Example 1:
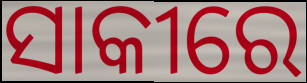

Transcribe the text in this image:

ସାକୀରେ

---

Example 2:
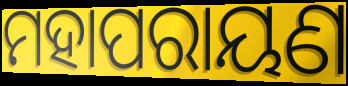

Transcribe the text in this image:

ମହାପରାୟଣ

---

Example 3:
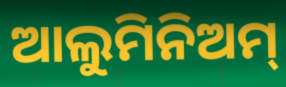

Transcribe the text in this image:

ଆଲୁମିନିଅମ୍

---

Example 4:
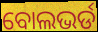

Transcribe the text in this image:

ବୋଲଭର୍ଡ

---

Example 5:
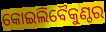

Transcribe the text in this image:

କୋଇଲିବୈକୁଣ୍ଠର